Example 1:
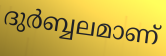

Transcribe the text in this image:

ദുർബ്ബലമാണ്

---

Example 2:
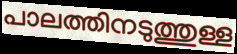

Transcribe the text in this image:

പാലത്തിനടുത്തുള്ള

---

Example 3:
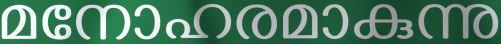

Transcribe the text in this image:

മനോഹരമാകുന്നു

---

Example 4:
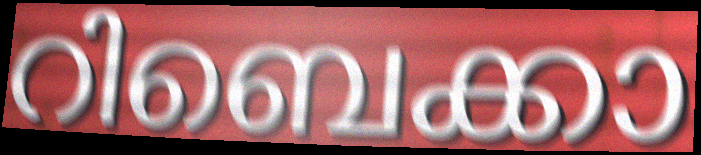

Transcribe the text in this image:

റിബെക്കാ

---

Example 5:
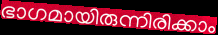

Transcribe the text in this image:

ഭാഗമായിരുന്നിരിക്കാം